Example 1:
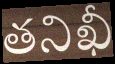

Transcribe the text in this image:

తనిఖీ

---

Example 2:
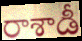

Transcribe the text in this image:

రాశాడీ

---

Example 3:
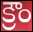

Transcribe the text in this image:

క్రౌం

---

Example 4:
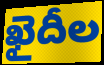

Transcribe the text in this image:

ఖైదీల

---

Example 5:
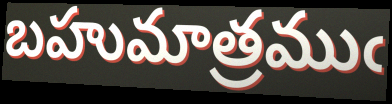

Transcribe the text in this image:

బహుమాత్రముఁ